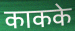
काकके